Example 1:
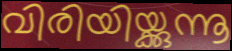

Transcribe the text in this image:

വിരിയിയ്ക്കുന്നൂ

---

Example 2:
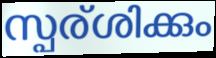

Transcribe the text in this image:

സ്പര്ശിക്കും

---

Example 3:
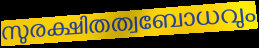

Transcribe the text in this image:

സുരക്ഷിതത്വബോധവും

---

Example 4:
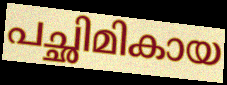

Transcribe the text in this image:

പച്ഛിമികായ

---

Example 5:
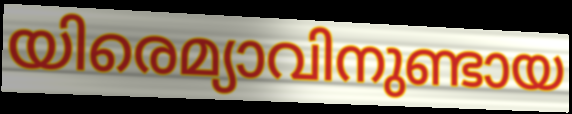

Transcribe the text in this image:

യിരെമ്യാവിനുണ്ടായ